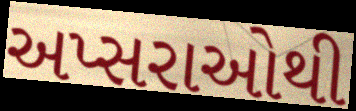
અપ્સરાઓથી